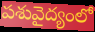
పశువైద్యంలో